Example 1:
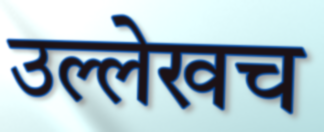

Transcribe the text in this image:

उल्लेखच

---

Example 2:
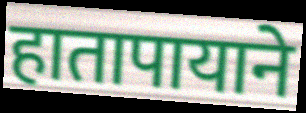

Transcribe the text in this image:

हातापायाने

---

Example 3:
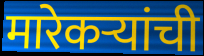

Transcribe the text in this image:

मारेकऱ्यांची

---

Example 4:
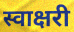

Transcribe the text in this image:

स्वाक्षरी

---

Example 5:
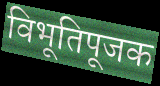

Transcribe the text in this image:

विभूतिपूजक